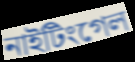
নাইটিংগেল